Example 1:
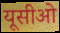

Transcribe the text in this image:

यूसीओ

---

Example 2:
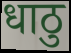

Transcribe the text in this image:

धाठु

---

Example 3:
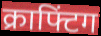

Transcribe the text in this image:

क्राफ्टिंग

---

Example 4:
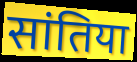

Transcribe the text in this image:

सांतिया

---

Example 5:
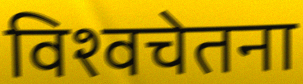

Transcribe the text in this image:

विश्वचेतना